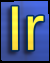
Ir